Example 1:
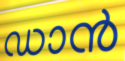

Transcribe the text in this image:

ഡാൻ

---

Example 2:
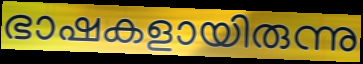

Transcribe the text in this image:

ഭാഷകളായിരുന്നു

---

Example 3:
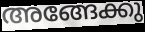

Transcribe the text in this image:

അങ്ങേക്കു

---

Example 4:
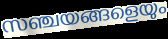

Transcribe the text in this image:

സഞ്ചയങ്ങളെയും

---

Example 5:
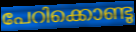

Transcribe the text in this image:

പേറിക്കൊണ്ടു